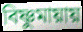
বিষ্ণুমায়ায়